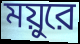
ময়ুরে